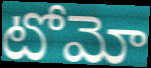
టోమో